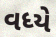
વધ્યે